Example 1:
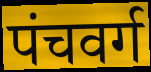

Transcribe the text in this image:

पंचवर्ग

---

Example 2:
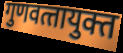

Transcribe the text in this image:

गुणवत्‍तायुक्‍त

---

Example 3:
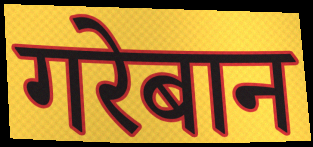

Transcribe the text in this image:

गरेबान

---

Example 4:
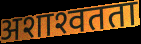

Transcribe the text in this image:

अशाश्वतता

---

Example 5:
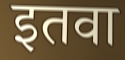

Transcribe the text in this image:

इतवा